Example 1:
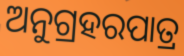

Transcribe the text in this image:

ଅନୁଗ୍ରହରପାତ୍ର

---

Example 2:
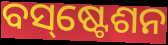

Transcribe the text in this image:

ବସ୍‌ଷ୍ଟେଶନ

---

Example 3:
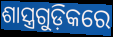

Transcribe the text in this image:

ଶାସ୍ତ୍ରଗୁଡ଼ିକରେ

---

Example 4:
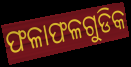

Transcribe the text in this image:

ଫଳାଫଳଗୁଡିକ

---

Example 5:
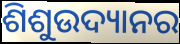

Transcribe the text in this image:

ଶିଶୁଉଦ୍ୟାନର